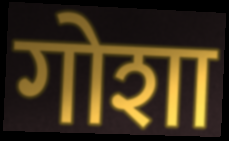
गोशा